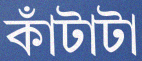
কাঁটাটা